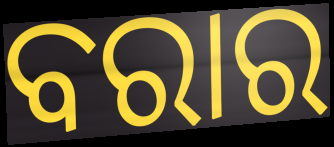
ବରାର